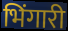
भिंगारी